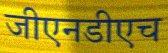
जीएनडीएच